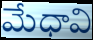
మేధావి